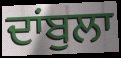
ਦਾਂਬੁਲਾ